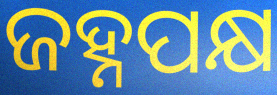
ଜହ୍ନପକ୍ଷ